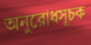
অনুরোধসূচক